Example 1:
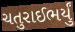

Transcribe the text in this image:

ચતુરાઈભર્યું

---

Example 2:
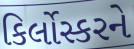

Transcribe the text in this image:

કિર્લોસ્કરને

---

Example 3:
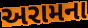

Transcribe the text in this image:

અરામના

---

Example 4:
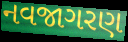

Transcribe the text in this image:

નવજાગરણ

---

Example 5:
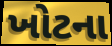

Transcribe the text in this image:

ખોટના